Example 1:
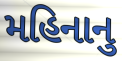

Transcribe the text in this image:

મહિનાનુ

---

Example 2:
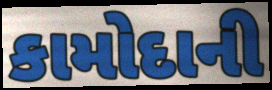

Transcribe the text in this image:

કામોદાની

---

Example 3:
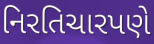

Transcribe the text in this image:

નિરતિચારપણે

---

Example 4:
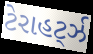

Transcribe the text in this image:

ટેરાહર્ટ્ઝ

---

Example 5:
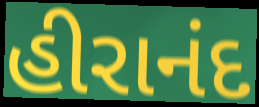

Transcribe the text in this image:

હીરાનંદ